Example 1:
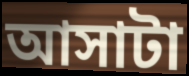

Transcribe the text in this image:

আসাটা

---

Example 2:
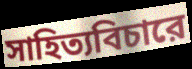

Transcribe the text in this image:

সাহিত্যবিচারে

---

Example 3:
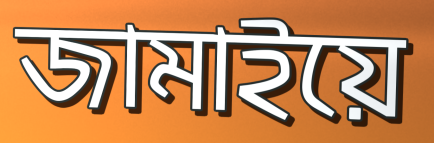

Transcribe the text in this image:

জামাইয়ে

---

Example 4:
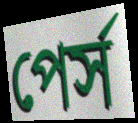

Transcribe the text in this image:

পের্স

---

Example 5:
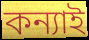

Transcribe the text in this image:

কন্যাই